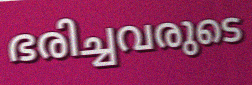
ഭരിച്ചവരുടെ